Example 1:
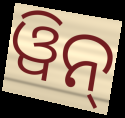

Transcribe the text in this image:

ୱିନ୍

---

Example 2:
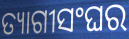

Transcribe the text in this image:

ତ୍ୟାଗୀସଂଘର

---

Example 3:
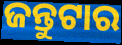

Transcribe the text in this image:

ଜନ୍ତୁଟାର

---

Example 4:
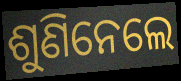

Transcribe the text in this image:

ଶୁଣିନେଲେ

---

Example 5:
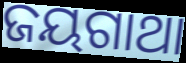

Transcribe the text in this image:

ଜୟଗାଥା